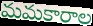
మమకారాల